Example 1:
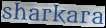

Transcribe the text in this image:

sharkara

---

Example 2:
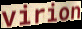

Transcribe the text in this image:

virion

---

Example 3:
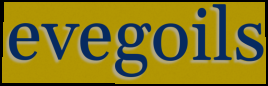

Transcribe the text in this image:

evegoils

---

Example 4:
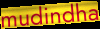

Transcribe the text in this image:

mudindha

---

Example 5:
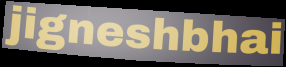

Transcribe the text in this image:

jigneshbhai